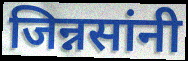
जिन्नसांनी